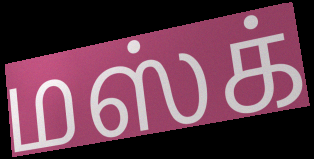
மஸ்க்